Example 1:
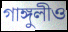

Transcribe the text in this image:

গাঙ্গুলীও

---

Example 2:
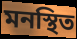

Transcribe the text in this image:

মনস্থিত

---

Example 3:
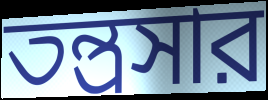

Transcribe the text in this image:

তন্ত্রসার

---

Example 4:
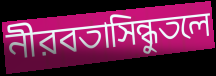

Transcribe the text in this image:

নীরবতাসিন্ধুতলে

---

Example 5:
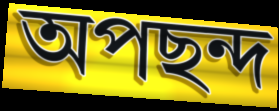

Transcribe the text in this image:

অপছন্দ